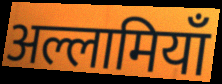
अल्लामियाँ